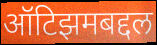
ऑटिझमबद्दल